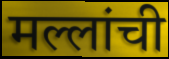
मल्लांची